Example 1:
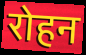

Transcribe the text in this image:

रोहन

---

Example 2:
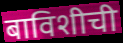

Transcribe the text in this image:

बाविशीची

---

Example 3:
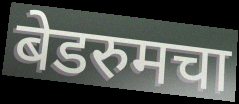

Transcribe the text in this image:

बेडरुमचा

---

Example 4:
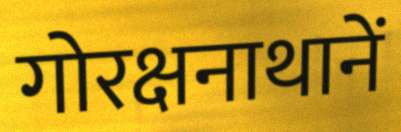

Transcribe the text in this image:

गोरक्षनाथानें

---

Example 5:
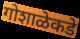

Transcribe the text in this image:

गोशाळेकडे